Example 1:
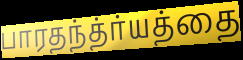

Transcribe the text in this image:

பாரதந்த்ர்யத்தை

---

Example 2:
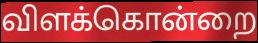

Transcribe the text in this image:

விளக்கொன்றை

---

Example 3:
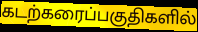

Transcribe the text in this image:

கடற்கரைப்பகுதிகளில்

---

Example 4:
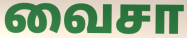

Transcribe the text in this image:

வைசா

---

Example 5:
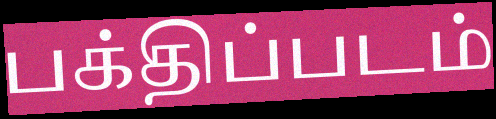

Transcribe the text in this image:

பக்திப்படம்